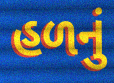
હળનું